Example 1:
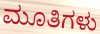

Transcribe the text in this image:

ಮೂತಿಗಳು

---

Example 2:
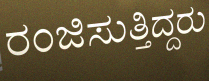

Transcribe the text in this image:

ರಂಜಿಸುತ್ತಿದ್ದರು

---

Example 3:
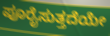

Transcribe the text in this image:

ಪೂರೈಸುತ್ತದೆಯೇ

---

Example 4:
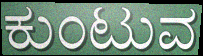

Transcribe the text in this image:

ಕುಂಟುವ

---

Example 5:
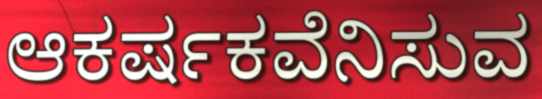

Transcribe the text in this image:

ಆಕರ್ಷಕವೆನಿಸುವ